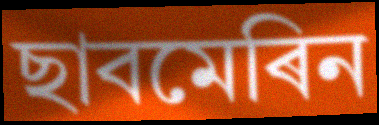
ছাবমেৰিন